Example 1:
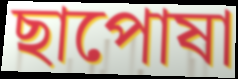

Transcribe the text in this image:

ছাপোষা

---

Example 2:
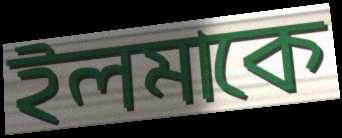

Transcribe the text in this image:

ইলমাকে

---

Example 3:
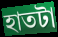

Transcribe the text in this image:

হাতটা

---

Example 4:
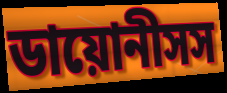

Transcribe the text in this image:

ডায়োনীসস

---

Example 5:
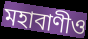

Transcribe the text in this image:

মহাবাণীও